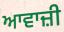
ਆਵਾਜ਼ੀ